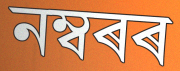
নম্বৰৰ